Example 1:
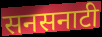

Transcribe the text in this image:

सनसनाटी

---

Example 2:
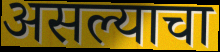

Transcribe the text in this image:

असल्‍याचा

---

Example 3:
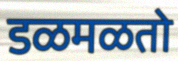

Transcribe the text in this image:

डळमळतो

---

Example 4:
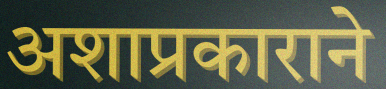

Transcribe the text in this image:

अशाप्रकाराने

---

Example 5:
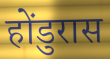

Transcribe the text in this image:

होंडुरास